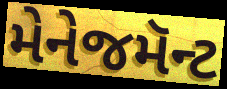
મેનેજમૅન્ટ